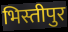
भिस्तीपुर